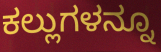
ಕಲ್ಲುಗಳನ್ನೂ